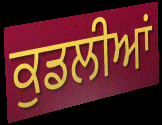
ਕੁਡਲੀਆਂ